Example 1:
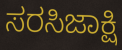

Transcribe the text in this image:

ಸರಸಿಜಾಕ್ಷಿ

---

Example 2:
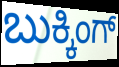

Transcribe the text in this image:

ಬುಕ್ಕಿಂಗ್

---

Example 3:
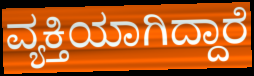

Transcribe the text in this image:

ವ್ಯಕ್ತಿಯಾಗಿದ್ದಾರೆ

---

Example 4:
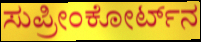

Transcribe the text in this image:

ಸುಪ್ರೀಂಕೋರ್ಟ್‌ನ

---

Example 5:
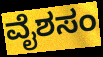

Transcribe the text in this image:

ವೈಶಸಂ